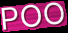
POO